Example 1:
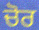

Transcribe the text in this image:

ਚੋਰ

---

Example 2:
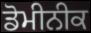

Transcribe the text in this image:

ਡੋਮੀਨੀਕ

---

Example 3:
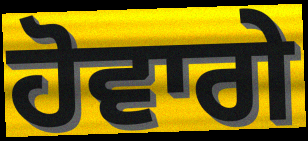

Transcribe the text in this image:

ਹੋਵਾਗੇ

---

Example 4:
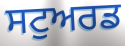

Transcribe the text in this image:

ਸਟੁਅਰਡ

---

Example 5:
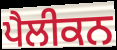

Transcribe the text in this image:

ਪੈਲੀਕਨ